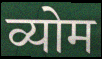
व्योम